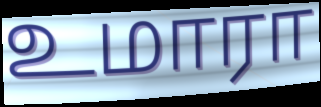
உமாரா